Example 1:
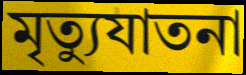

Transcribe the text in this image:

মৃত্যুযাতনা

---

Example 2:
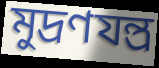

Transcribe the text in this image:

মুদ্রণযন্ত্র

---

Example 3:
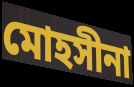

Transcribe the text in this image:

মোহসীনা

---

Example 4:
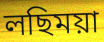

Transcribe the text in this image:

লছিময়া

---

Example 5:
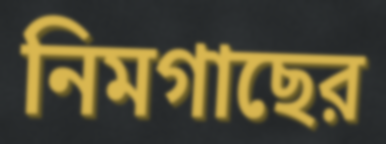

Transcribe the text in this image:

নিমগাছের